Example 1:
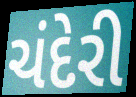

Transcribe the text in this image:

ચંદેરી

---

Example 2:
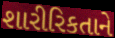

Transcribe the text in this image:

શારીરિકતાને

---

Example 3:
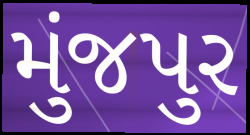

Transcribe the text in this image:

મુંજપુર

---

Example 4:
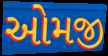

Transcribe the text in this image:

ઓમજી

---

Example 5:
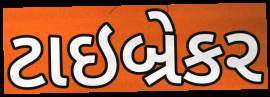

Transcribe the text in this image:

ટાઇબ્રેકર